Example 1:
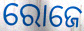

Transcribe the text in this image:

ରୋଜେ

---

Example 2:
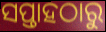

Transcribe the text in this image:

ସପ୍ତାହଠାରୁ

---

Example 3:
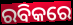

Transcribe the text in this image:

ରବିକରେ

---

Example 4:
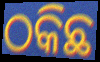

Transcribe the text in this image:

ଠକିଛ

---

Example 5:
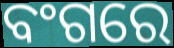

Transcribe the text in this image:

ବଂଗରେ